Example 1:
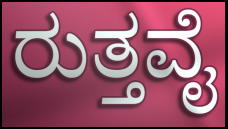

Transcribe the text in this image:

ರುತ್ತವೈ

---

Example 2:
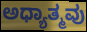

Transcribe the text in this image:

ಅಧ್ಯಾತ್ಮವು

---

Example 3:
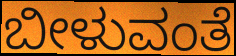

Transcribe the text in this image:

ಬೀಳುವಂತೆ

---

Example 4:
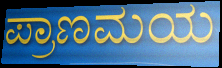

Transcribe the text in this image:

ಪ್ರಾಣಮಯ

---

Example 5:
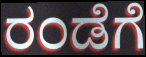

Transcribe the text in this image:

ರಂಡೆಗೆ